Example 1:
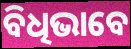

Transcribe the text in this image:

ବିଧିଭାବେ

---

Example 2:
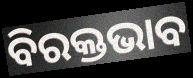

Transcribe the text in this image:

ବିରକ୍ତଭାବ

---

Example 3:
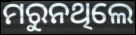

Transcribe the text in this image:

ମରୁନଥିଲେ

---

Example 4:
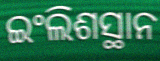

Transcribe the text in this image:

ଇଂଲିଶସ୍ଥାନ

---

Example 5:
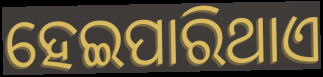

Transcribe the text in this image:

ହେଇପାରିଥାଏ